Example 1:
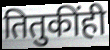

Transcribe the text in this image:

तितुकींही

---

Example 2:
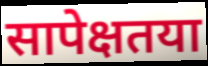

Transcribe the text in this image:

सापेक्षतया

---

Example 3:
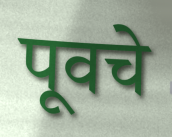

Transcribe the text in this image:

पूवचे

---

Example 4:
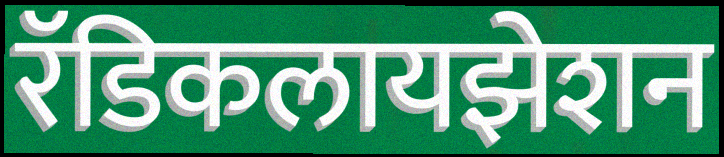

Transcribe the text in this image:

रॅडिकलायझेशन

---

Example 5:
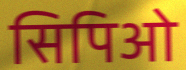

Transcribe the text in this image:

सिपिओ